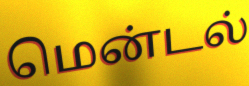
மென்டல்